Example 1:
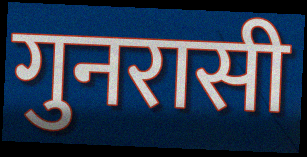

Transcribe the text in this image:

गुनरासी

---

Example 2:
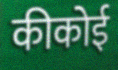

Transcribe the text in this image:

कीकोई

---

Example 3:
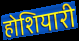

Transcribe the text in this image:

होशियारी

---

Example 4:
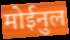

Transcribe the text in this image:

मोईनुल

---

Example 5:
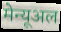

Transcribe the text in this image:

मेन्यूअल